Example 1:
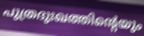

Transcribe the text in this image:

പുത്രദുഃഖത്തിന്റെയും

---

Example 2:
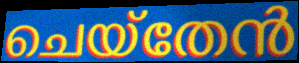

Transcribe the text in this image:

ചെയ്‌തേൻ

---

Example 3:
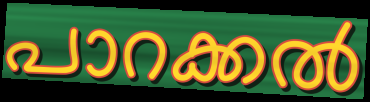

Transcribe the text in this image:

പാറക്കൽ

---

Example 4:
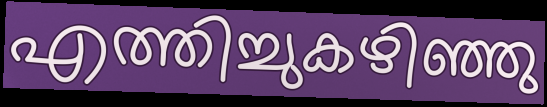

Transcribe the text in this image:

എത്തിച്ചുകഴിഞ്ഞു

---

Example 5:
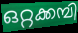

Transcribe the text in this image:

ഒറ്റക്കമ്പി